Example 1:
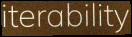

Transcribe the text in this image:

iterability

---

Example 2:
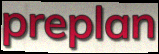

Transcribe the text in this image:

preplan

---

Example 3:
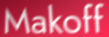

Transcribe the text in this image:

Makoff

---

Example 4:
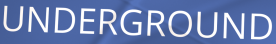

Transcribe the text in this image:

UNDERGROUND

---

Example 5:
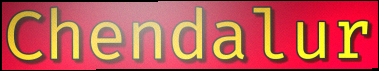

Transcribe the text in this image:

Chendalur